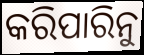
କରିପାରିନୁ